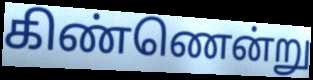
கிண்ணென்று